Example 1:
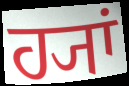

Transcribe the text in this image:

ਹ੍ਯਾਂ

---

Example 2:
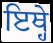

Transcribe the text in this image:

ਇਥ੍ਹੇ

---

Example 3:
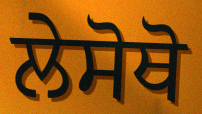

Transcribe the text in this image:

ਲੇਸੋਥੋ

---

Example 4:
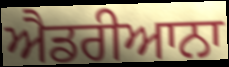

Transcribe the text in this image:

ਐਡਰੀਆਨਾ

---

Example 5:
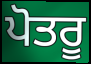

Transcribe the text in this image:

ਪੋਤਰੂ